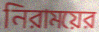
নিরাময়ের